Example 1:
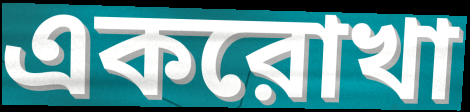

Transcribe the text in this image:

একরোখা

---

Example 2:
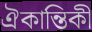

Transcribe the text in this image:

ঐকান্তিকী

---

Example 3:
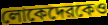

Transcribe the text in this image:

লোকেদেরকেও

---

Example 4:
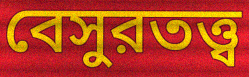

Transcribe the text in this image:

বেসুরতত্ত্ব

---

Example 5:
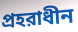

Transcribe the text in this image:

প্রহরাধীন